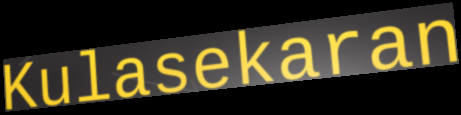
Kulasekaran